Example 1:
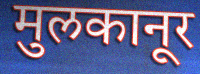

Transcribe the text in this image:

मुलकानूर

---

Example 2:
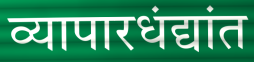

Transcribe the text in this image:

व्यापारधंद्यांत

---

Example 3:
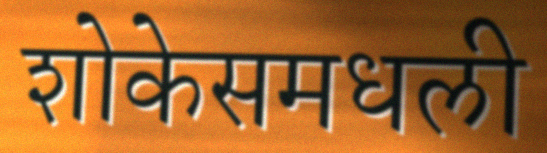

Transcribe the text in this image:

शोकेसमधली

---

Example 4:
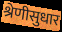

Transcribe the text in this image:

श्रेणीसुधार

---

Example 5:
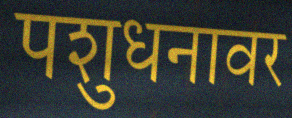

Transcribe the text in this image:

पशुधनावर